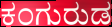
ಕಂಗುರುಡ